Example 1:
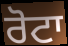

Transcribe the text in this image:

ਰੋਟਾ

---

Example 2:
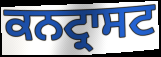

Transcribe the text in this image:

ਕਨਟ੍ਰਾਸਟ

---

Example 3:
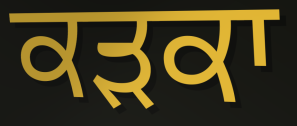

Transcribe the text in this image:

ਕੜਕਾ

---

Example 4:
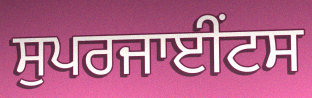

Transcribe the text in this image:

ਸੁਪਰਜਾਈਂਟਸ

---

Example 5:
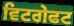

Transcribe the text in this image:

ਵਿਟਗੇਫਟ